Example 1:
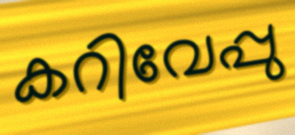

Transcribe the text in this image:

കറിവേപ്പു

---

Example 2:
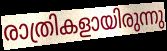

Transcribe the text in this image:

രാത്രികളായിരുന്നു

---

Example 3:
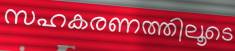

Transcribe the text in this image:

സഹകരണത്തിലൂടെ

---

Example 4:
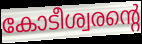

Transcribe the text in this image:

കോടീശ്വരന്റെ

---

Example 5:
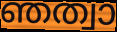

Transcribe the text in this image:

ഞത്വാ